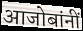
आजोबांनीं